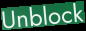
Unblock